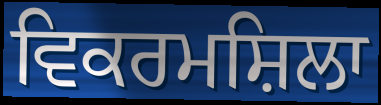
ਵਿਕਰਮਸ਼ਿਲਾ